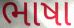
ભાષા